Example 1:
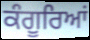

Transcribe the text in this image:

ਕੰਗੂਰਿਆਂ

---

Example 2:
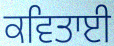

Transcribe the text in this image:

ਕਵਿਤਾਈ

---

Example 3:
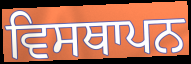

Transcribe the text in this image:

ਵਿਸਥਾਪਨ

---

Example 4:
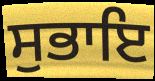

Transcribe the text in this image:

ਸੁਭਾਇ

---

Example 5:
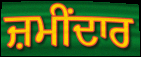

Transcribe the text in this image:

ਜ਼ਮੀਂਦਾਰ